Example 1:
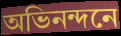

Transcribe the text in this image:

অভিনন্দনে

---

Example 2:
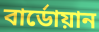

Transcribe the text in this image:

বার্ডোয়ান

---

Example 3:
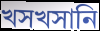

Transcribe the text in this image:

খসখসানি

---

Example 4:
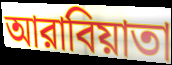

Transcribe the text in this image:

আরাবিয়াতা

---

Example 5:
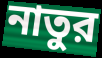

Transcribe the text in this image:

নাতুর